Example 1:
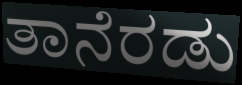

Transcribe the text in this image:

ತಾನೆರಡು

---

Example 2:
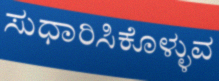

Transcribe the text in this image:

ಸುಧಾರಿಸಿಕೊಳ್ಳುವ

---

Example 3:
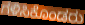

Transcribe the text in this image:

ಗಳಿಸಿಕೊಂಡರು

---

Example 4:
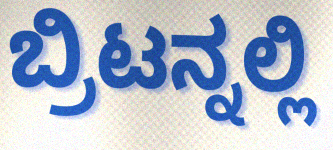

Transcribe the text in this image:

ಬ್ರಿಟನ್ನಲ್ಲಿ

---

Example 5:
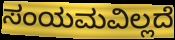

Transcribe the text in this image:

ಸಂಯಮವಿಲ್ಲದೆ